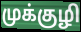
முக்குழி